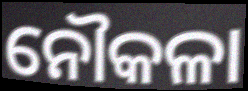
ନୌକଳା